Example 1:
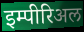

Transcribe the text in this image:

इम्पीरिअल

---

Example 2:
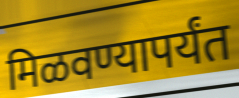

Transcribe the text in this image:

मिळवण्यापर्यंत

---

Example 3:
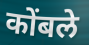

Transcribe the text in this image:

कोंबले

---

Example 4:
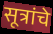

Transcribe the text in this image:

सूत्रांचे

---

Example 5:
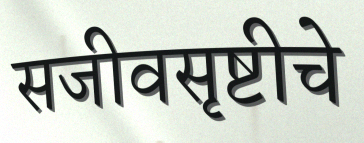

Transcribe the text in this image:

सजीवसृष्टीचे